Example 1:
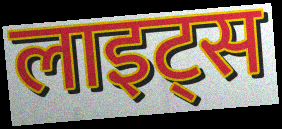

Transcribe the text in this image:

लाइट्स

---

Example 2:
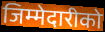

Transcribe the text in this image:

जिम्मेदारीको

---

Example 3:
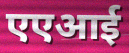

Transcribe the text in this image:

एएआई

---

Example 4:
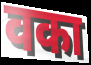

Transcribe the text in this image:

वका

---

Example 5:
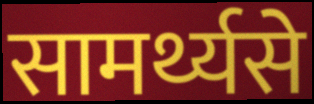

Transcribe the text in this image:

सामर्थ्यसे